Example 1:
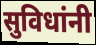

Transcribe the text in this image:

सुविधांनी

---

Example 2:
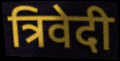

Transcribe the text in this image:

त्रिवेदी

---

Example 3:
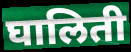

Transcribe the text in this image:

घालिती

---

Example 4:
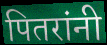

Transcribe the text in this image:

पितरांनी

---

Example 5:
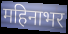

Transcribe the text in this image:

महिनाभर